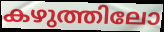
കഴുത്തിലോ